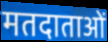
मतदाताओें